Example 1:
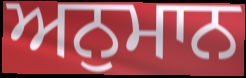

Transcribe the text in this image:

ਅਨੁਮਾਨ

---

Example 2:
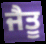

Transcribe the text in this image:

ਜੈਤੂ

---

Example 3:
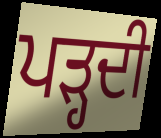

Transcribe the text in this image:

ਪੜ੍ਹਦੀ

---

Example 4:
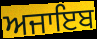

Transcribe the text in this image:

ਅਜਾਇਬ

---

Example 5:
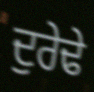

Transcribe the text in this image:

ਦੁਰੇਢੇ